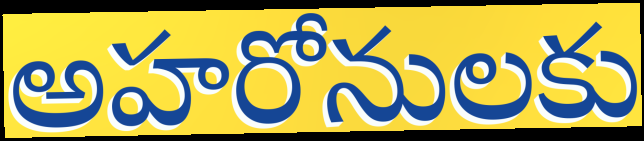
అహరోనులకు